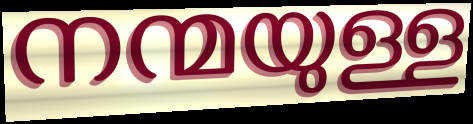
നന്മയുള്ള